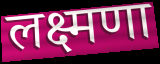
लक्ष्मणा